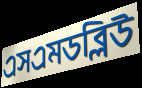
এসএমডব্লিউ